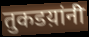
तुकडय़ांनी